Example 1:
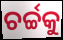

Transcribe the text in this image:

ଚର୍ଚ୍ଚକୁ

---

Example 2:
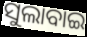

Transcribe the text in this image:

ସୁଲାବାଇ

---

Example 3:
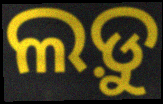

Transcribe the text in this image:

ଲଡ଼ୁ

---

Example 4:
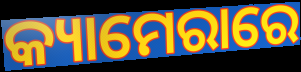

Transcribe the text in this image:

କ୍ୟାମେରାରେ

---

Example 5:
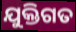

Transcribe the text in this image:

ଯୁକ୍ତିଗତ